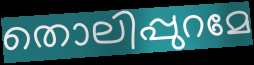
തൊലിപ്പുറമേ